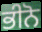
ਭੀਨੋ